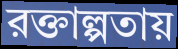
রক্তাল্পতায়